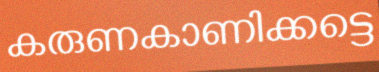
കരുണകാണിക്കട്ടെ